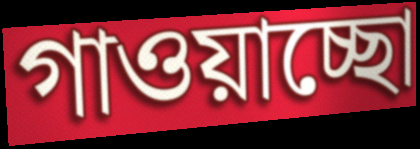
গাওয়াচ্ছো